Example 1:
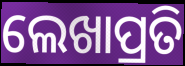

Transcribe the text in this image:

ଲେଖାପ୍ରତି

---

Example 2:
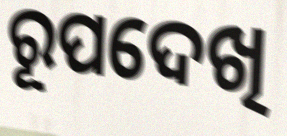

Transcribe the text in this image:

ରୂପଦେଖି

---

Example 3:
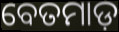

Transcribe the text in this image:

ବେତମାଡ଼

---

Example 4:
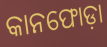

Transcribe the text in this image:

କାନଫୋଡ଼ା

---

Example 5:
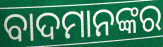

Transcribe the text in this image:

ବାଦମାନଙ୍କର